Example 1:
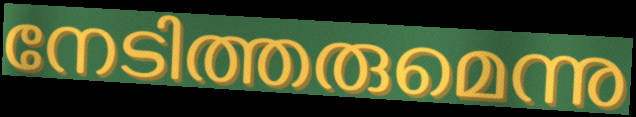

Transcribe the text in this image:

നേടിത്തരുമെന്നു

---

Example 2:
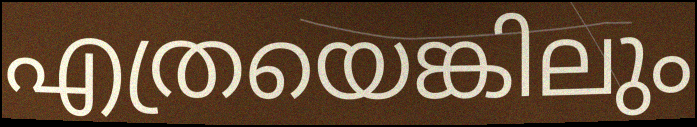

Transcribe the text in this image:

എത്രയെങ്കിലും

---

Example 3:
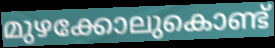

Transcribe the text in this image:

മുഴക്കോലുകൊണ്ട്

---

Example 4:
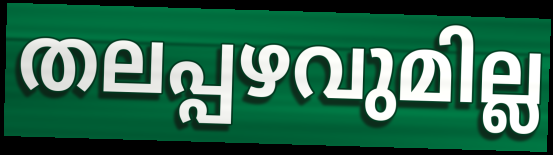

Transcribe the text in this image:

തലപ്പഴവുമില്ല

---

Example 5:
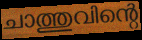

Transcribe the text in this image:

ചാത്തുവിന്റെ